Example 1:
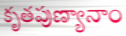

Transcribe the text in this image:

కృతపుణ్యానాం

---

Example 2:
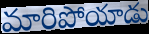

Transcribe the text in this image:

మారిపోయాడు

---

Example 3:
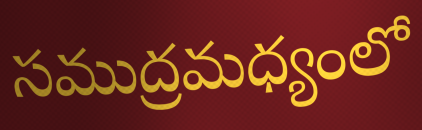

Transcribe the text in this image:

సముద్రమధ్యంలో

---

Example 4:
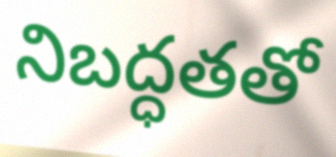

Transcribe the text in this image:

నిబద్ధతతో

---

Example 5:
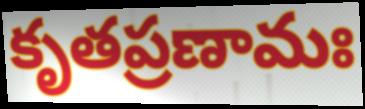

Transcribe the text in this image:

కృతప్రణామః